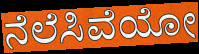
ನೆಲೆಸಿವೆಯೋ